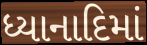
ધ્યાનાદિમાં